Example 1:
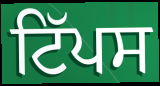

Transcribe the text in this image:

ਟਿੱਪਸ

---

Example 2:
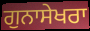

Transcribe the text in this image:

ਗੁਨਾਸੇਖਰਾ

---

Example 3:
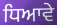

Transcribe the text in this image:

ਧਿਆਵੇ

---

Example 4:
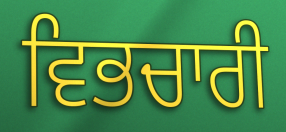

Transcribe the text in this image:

ਵਿਭਚਾਰੀ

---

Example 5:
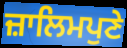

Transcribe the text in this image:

ਜ਼ਾਲਿਮਪੁਣੇ